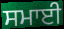
ਸਮਾਈ